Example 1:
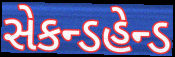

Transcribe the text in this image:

સેકન્ડહેન્ડ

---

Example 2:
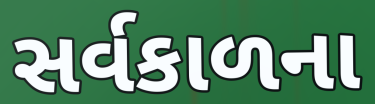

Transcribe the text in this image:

સર્વકાળના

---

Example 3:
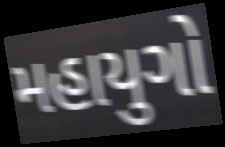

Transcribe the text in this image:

મહાયુગો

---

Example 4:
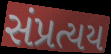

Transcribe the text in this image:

સંપ્રત્યય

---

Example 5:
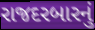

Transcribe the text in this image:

રાજદરબારનું